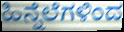
ಹಿನ್ನೆಲೆಗಳಿಂದ